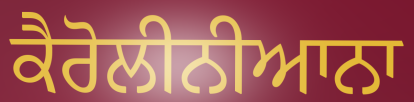
ਕੈਰੋਲੀਨੀਆਨਾ